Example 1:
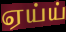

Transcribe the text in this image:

ஏய்ய்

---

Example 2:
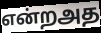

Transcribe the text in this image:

என்றஅத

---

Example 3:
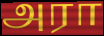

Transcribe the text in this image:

அரா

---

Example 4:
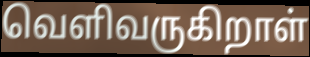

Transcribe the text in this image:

வெளிவருகிறாள்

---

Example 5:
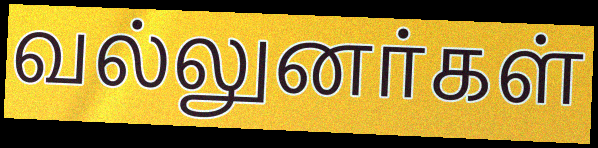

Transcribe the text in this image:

வல்லுனர்கள்